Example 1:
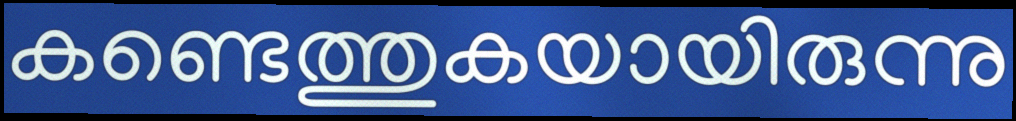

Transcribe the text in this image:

കണ്ടെത്തുകയായിരുന്നു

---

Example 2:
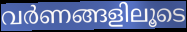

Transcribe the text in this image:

വർണങ്ങളിലൂടെ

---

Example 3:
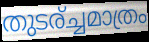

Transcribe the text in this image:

തുടര്ച്ചമാത്രം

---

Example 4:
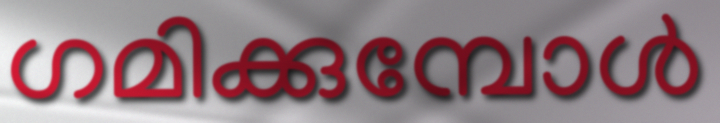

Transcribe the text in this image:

ഗമിക്കുമ്പോൾ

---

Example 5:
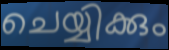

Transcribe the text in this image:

ചെയ്യിക്കും